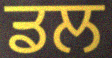
ਡਲ